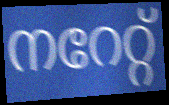
നറേറ്റ്